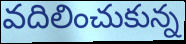
వదిలించుకున్న